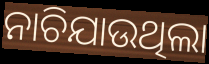
ନାଚିଯାଉଥିଲା